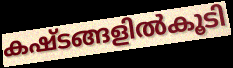
കഷ്ടങ്ങളിൽകൂടി